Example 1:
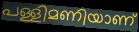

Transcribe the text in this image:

പള്ളിമണിയാണ്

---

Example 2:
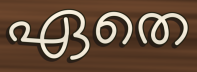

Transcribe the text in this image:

ഏതെ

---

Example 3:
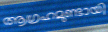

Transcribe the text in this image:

ആഗ്രഹമുണ്ടായി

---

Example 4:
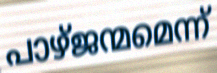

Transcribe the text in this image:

പാഴ്ജന്മമെന്ന്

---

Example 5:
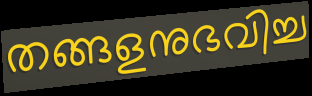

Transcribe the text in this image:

തങ്ങളനുഭവിച്ച